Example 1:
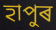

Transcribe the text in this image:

হাপুৰ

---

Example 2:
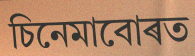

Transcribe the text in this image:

চিনেমাবোৰত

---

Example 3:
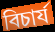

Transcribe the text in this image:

বিচাৰ্য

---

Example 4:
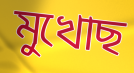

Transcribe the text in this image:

মুখোছ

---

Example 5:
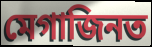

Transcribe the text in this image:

মেগাজিনত